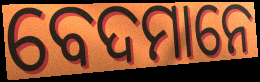
ବେଦମାନେ